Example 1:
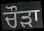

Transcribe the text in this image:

ਚੌੜਾ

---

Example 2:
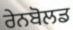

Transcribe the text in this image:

ਰੇਨਬੋਲਡ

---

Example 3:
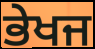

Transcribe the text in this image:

ਭੇਖਜ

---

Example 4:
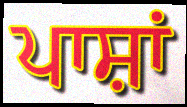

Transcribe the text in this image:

ਪਾਸ਼ਾਂ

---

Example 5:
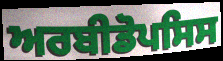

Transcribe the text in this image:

ਅਰਬੀਡੋਪਸਿਸ